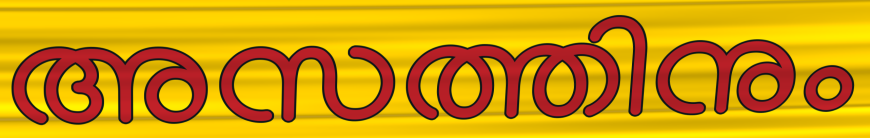
അസത്തിനും